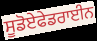
ਸੂਡੋਏਫੇਡਰਾਈਨ